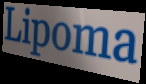
Lipoma